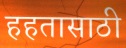
हहतासाठी